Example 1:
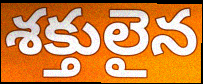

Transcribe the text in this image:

శక్తులైన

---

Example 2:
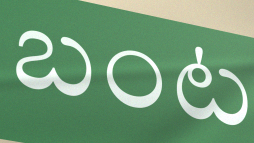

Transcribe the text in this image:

బంట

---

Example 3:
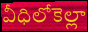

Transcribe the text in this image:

వీధిలోకెల్లా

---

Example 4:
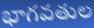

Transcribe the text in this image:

భాగవతుల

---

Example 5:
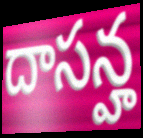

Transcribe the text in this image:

దాసన్హ